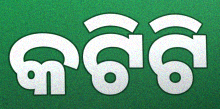
କଟିଟି